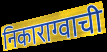
निकाराग्वाची